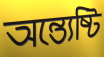
অন্ত্যেষ্টি